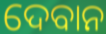
ଦେବାନ